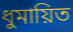
ধুমায়িত